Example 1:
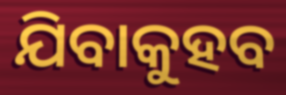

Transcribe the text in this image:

ଯିବାକୁହବ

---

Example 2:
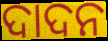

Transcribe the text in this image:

ଦାଦନ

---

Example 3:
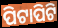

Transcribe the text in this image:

ପିଟାପିଟି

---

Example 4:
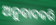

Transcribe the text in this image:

ଅନୁବାଦକରି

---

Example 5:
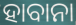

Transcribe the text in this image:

ହାବାନା